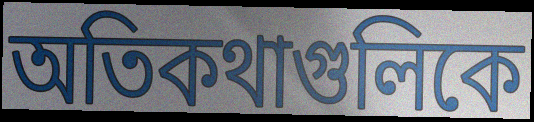
অতিকথাগুলিকে